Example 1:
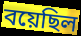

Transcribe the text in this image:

বয়েছিল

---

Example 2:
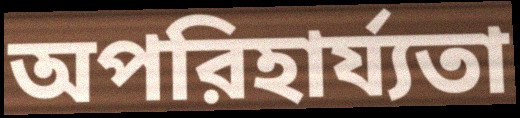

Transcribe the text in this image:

অপরিহার্য্যতা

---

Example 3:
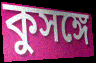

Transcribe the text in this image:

কুসঙ্গে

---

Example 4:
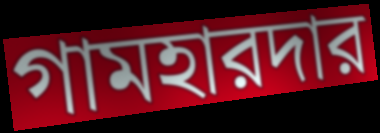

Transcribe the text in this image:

গামহারদার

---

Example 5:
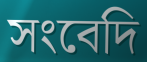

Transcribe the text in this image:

সংবেদি